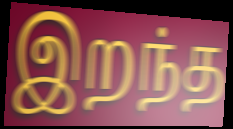
இறந்த